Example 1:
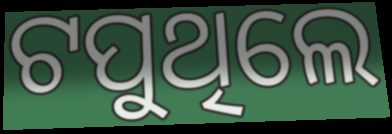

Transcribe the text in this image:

ଟପୁଥିଲେ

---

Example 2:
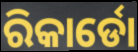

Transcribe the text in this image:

ରିକାର୍ଡୋ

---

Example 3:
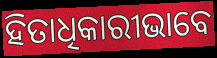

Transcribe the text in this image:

ହିତାଧିକାରୀଭାବେ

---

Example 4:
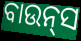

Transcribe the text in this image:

ବାଉନ୍‍ସ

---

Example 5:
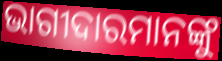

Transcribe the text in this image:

ଭାଗୀଦାରମାନଙ୍କୁ